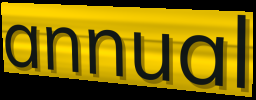
annual